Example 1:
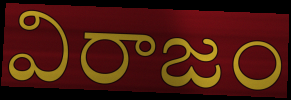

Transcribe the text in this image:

విరాజం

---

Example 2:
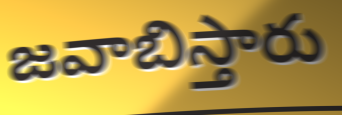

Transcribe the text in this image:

జవాబిస్తారు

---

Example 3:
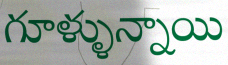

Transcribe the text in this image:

గూళ్ళున్నాయి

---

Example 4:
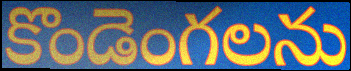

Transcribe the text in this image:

కొండెంగలను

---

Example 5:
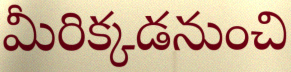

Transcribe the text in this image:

మీరిక్కడనుంచి